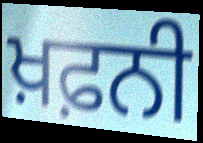
ਖ਼ਫ਼ਨੀ